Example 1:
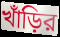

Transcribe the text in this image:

খাঁড়ির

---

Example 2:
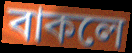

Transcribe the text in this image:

বাকলে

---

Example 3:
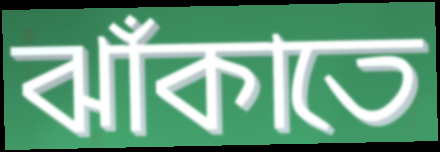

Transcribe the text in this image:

ঝাঁকাতে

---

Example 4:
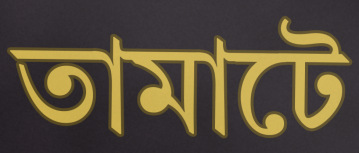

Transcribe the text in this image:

তামাটে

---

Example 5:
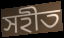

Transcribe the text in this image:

সহীত